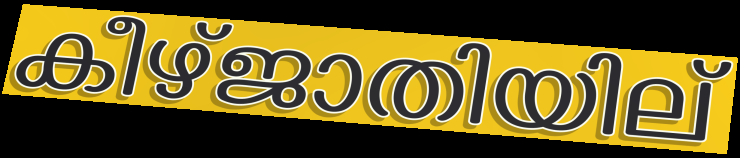
കീഴ്ജാതിയില്